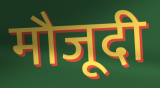
मौजूदी